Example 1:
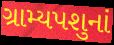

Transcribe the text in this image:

ગ્રામ્યપશુનાં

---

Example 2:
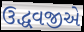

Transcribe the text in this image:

ઉદ્ધવજીએ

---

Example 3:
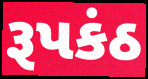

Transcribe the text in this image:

રૂપકંઠ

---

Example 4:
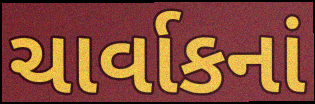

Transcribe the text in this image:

ચાર્વાકનાં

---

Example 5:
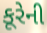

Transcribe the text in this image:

કૂરેની